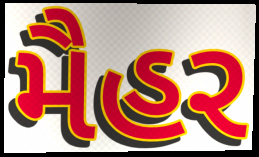
મૈહર